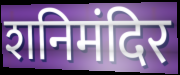
शनिमंदिर